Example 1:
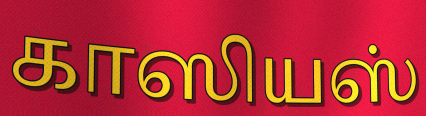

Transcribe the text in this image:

காஸியஸ்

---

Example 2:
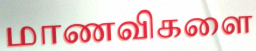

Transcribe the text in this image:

மாணவிகளை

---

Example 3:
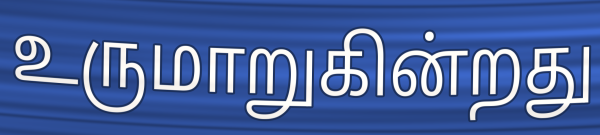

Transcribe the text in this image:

உருமாறுகின்றது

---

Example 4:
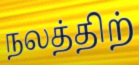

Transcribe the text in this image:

நலத்திற்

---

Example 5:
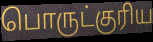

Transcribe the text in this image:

பொருட்குரிய